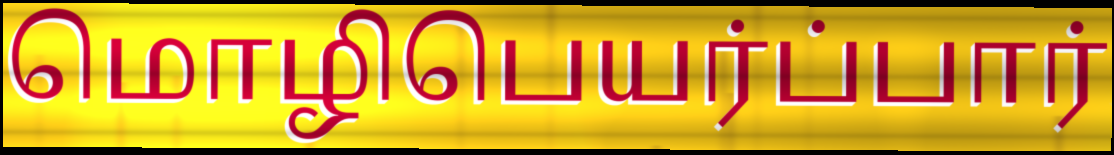
மொழிபெயர்ப்பார்